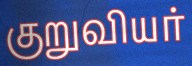
குறுவியர்